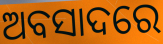
ଅବସାଦରେ